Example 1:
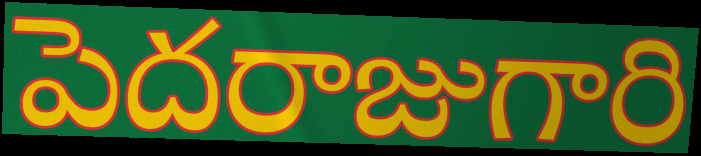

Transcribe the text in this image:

పెదరాజుగారి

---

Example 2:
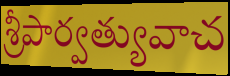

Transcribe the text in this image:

శ్రీపార్వత్యువాచ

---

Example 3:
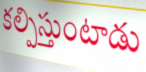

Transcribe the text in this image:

కల్పిస్తుంటాడు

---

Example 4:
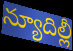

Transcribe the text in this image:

న్యూదిల్లీ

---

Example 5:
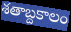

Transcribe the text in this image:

శతాబ్దకాలం